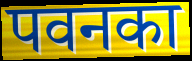
पवनका